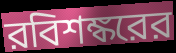
রবিশঙ্করের